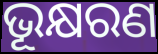
ଭୂକ୍ଷରଣ